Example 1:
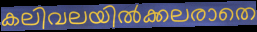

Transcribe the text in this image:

കലിവലയിൽക്കലരാതെ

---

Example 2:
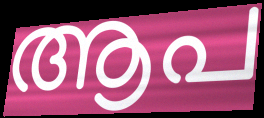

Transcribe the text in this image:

ആപ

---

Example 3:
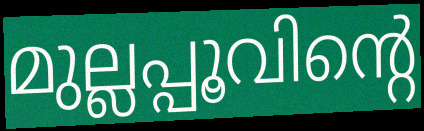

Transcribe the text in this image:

മുല്ലപ്പൂവിന്റെ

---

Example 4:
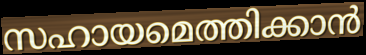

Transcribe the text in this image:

സഹായമെത്തിക്കാൻ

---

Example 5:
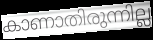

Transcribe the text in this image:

കാണാതിരുന്നില്ല